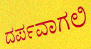
ದರ್ಪವಾಗಲಿ